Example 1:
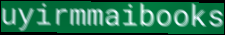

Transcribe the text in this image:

uyirmmaibooks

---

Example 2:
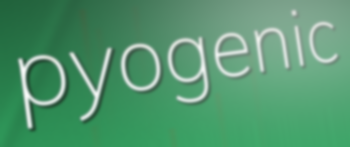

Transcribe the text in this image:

pyogenic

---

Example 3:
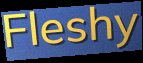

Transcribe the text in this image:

Fleshy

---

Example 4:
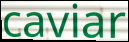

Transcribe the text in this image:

caviar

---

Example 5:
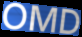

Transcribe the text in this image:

OMD